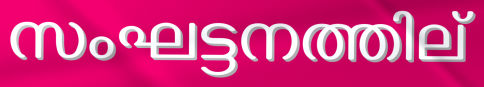
സംഘട്ടനത്തില്